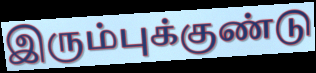
இரும்புக்குண்டு